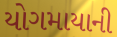
યોગમાયાની